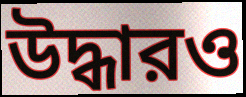
উদ্ধারও